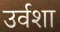
उर्वशा